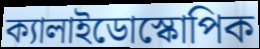
ক্যালাইডোস্কোপিক